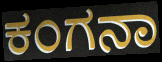
ಕಂಗನಾ